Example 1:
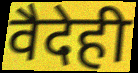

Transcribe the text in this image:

वैदेही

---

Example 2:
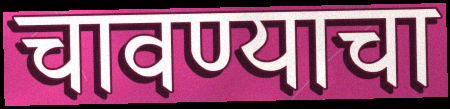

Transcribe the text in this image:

चावण्याचा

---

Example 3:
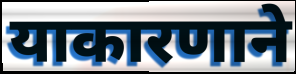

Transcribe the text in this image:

याकारणाने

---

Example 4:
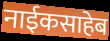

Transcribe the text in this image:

नाईकसाहेब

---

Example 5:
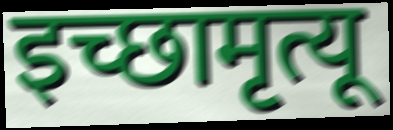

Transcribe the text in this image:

इच्छामृत्यू